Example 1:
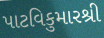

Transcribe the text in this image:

પાટવિકુમારશ્રી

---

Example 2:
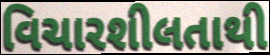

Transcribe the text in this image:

વિચારશીલતાથી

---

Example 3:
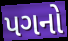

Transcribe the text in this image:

પગનો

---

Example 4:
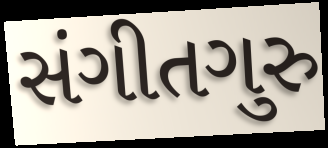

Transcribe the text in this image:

સંગીતગુરુ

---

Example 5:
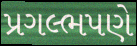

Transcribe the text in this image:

પ્રગલ્ભપણે